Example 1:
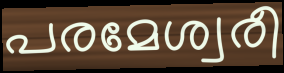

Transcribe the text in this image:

പരമേശ്വരീ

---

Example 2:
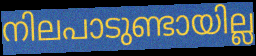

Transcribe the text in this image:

നിലപാടുണ്ടായില്ല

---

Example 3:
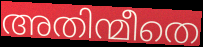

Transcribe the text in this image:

അതിന്മീതെ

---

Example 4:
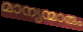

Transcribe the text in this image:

മാന്യന്മാരും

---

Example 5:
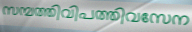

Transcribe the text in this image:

സമ്പത്തിവിപത്തിവസേന